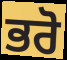
ਭਰੋ